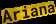
Ariana